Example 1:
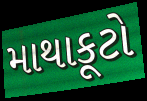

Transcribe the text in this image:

માથાકૂટો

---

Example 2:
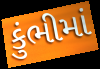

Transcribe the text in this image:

કુંભીમાં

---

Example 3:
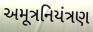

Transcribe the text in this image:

અમૂત્રનિયંત્રણ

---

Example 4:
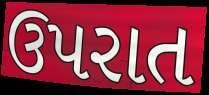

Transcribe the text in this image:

ઉપરાત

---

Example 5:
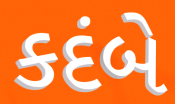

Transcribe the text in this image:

કદંબે